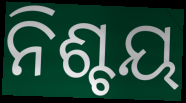
ନିଶ୍ଚୟ